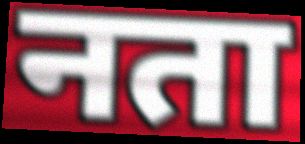
नता